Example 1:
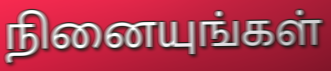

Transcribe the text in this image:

நினையுங்கள்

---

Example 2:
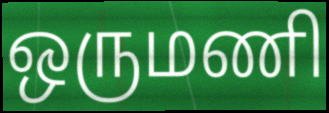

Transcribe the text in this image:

ஒருமணி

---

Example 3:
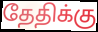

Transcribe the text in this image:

தேதிக்கு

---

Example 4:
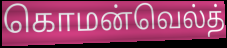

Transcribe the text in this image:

கொமன்வெல்த்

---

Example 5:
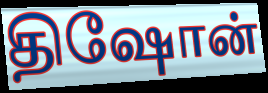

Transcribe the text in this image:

திஷோன்